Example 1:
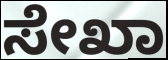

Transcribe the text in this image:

ಸೇಖಾ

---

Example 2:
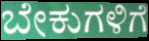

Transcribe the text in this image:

ಬೇಕುಗಳಿಗೆ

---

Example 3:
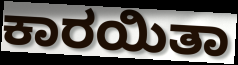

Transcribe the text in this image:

ಕಾರಯಿತಾ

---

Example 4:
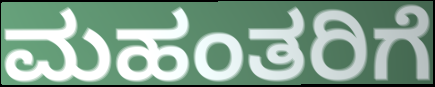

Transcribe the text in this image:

ಮಹಂತರಿಗೆ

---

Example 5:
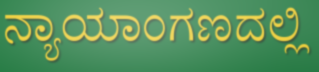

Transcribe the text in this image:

ನ್ಯಾಯಾಂಗಣದಲ್ಲಿ